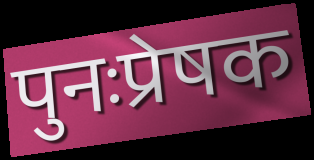
पुनःप्रेषक